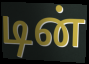
டின்